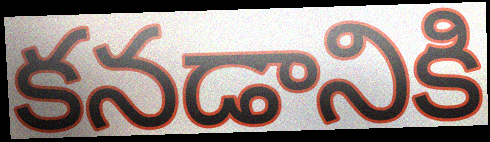
కనడానికి